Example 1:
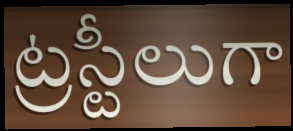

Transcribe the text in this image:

ట్రస్టీలుగా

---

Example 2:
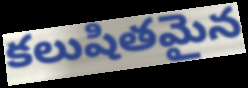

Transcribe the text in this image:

కలుషితమైన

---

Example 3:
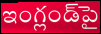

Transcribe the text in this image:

ఇంగ్లండ్‌పై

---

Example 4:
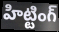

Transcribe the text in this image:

హిట్టింగ్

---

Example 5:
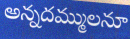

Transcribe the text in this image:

అన్నదమ్ములనూ